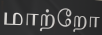
மாற்றோ